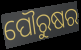
ପୌରୁଷର